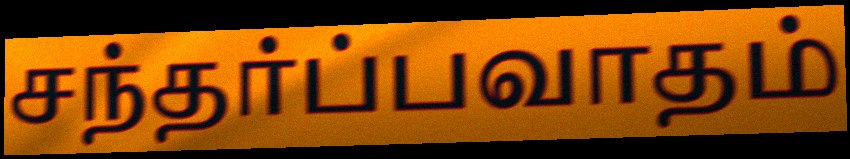
சந்தர்ப்பவாதம்